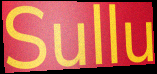
Sullu